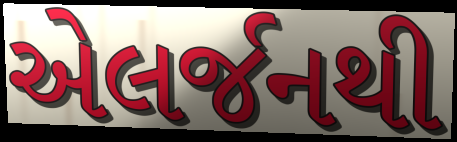
એલર્જનથી